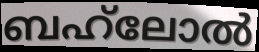
ബഹ്‌ലോൽ